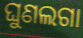
ଘୁଣଲଗା